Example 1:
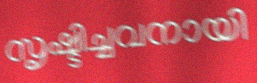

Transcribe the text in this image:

സൃഷ്ടിച്ചവനായി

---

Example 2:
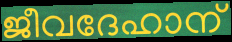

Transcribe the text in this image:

ജീവദേഹാന്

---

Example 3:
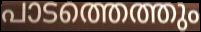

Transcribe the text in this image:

പാടത്തെത്തും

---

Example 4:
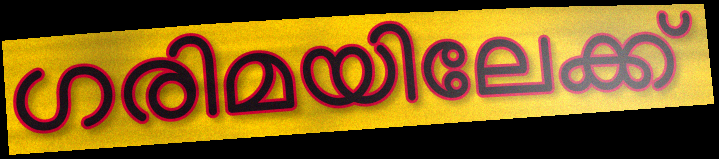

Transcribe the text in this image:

ഗരിമയിലേക്ക്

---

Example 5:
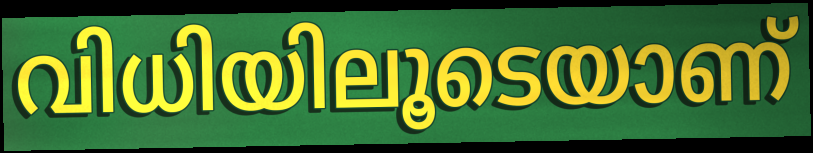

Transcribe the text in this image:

വിധിയിലൂടെയാണ്